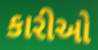
કારીઓ